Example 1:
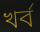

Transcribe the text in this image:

খৰ্ব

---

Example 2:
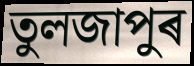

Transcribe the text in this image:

তুলজাপুৰ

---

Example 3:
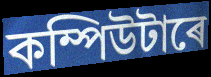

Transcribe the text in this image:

কম্পিউটাৰে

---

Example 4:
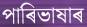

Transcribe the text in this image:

পাৰিভাষাৰ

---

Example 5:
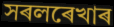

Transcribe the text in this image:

সৰলৰেখাৰ